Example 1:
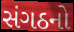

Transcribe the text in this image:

સંગઠનો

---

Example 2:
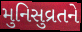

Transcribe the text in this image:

મુનિસુવ્રતને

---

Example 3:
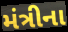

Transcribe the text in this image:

મંત્રીના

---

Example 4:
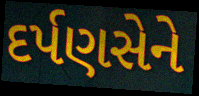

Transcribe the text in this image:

દર્પણસેને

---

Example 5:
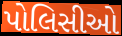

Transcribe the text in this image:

પોલિસીઓ